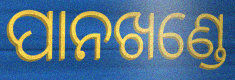
ପାନଖଣ୍ଡେ